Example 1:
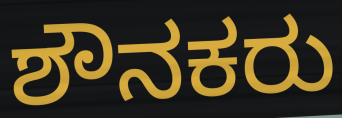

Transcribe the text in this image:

ಶೌನಕರು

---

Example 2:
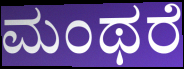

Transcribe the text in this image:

ಮಂಥರೆ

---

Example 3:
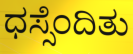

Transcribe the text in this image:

ಧಸ್ಸೆಂದಿತು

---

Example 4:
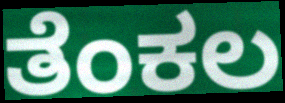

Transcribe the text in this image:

ತೆಂಕಲ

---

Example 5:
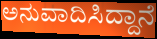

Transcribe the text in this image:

ಅನುವಾದಿಸಿದ್ದಾನೆ